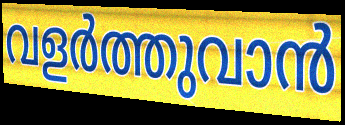
വളർത്തുവാൻ